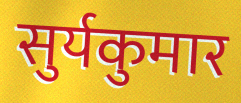
सुर्यकुमार